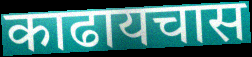
काढायचास